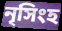
নৃসিংহ